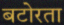
बटोरता